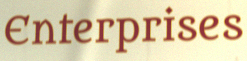
Enterprises